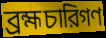
ব্রহ্মচারিগণ